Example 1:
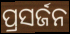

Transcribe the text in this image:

ପ୍ରସର୍ଜନ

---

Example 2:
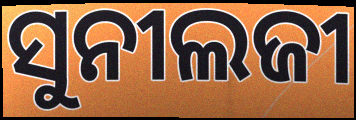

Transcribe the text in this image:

ସୁନୀଲଜୀ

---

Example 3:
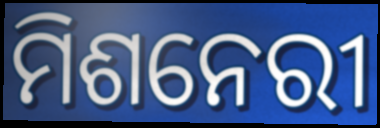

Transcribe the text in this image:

ମିଶନେରୀ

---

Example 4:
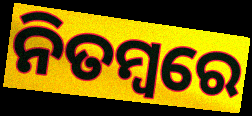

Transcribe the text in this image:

ନିତମ୍ବରେ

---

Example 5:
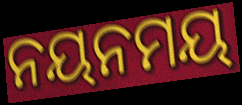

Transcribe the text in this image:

ନୟନମୟ